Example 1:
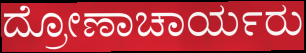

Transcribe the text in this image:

ದ್ರೋಣಾಚಾರ್ಯರು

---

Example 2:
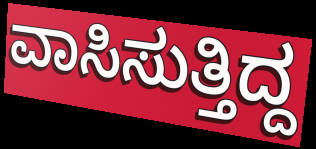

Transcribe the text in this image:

ವಾಸಿಸುತ್ತಿದ್ದ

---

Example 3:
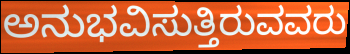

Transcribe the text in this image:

ಅನುಭವಿಸುತ್ತಿರುವವರು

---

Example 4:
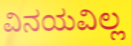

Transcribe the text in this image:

ವಿನಯವಿಲ್ಲ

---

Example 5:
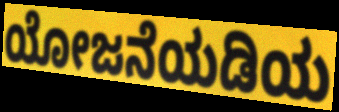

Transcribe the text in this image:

ಯೋಜನೆಯಡಿಯ